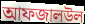
আফজালউল